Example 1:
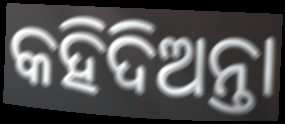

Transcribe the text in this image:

କହିଦିଅନ୍ତା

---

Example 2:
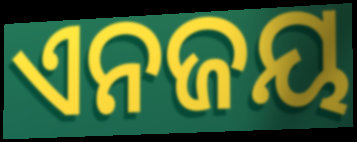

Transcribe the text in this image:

ଏନଜୟ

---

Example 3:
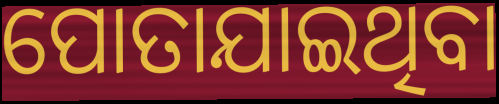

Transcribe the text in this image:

ପୋତାଯାଇଥିବା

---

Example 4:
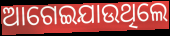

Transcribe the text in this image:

ଆଗେଇଯାଉଥିଲେ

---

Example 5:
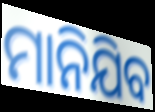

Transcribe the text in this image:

ମାନିଯିବ